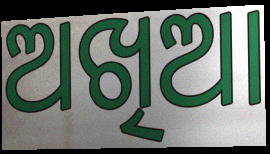
ଅଖିଆ